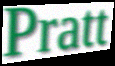
Pratt